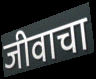
जीवाचा